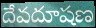
దేవదూషణ